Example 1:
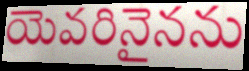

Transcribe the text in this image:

యెవరినైనను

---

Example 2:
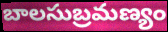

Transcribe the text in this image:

బాలసుబ్రమణ్యం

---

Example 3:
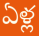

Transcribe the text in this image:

ఏళ్ల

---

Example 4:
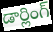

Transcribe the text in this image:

డార్లింగ్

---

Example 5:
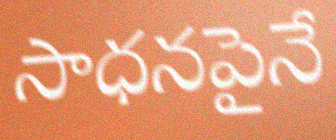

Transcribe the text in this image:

సాధనపైనే